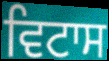
ਵਿਟਾਸ